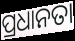
ପ୍ରଧାନତା